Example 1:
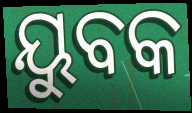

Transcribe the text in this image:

ୟୁବକ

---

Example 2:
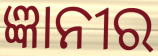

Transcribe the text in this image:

ଜ୍ଞାନୀର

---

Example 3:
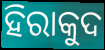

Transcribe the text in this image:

ହିରାକୁଦ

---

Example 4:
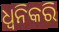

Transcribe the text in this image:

ଧ୍ୱନିକରି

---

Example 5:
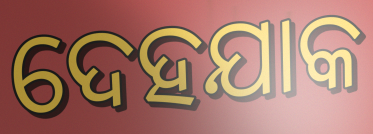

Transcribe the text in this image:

ଦେହଯାକ